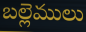
బల్లెములు